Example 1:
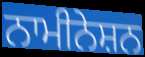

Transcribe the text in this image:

ਨਾਮੀਨੇਸ਼ਨ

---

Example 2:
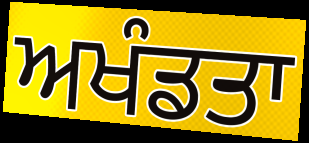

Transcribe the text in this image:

ਅਖੰਡਤਾ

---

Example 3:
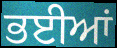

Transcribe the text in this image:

ਭਈਆਂ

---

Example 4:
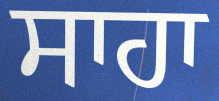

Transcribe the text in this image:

ਸਾਹਾ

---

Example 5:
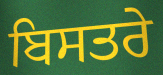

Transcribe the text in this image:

ਬਿਸਤਰੇ